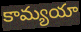
కామ్యయా